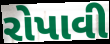
રોપાવી